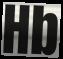
Hb